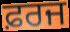
ਫ਼ਰਜ